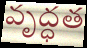
వృద్ధత